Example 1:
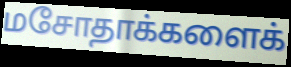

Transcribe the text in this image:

மசோதாக்களைக்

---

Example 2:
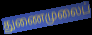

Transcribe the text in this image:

துணைமுலைப்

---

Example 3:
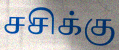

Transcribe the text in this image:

சசிக்கு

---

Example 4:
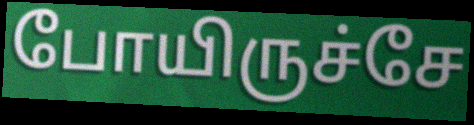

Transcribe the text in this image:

போயிருச்சே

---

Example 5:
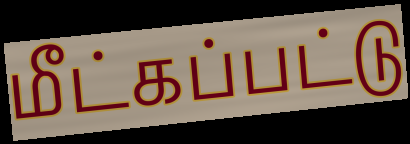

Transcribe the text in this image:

மீட்கப்பட்டு